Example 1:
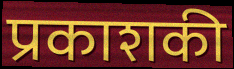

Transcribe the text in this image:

प्रकाशकी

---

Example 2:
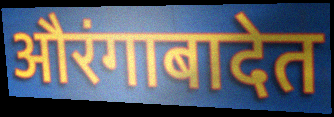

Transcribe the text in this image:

औरंगाबादेत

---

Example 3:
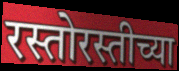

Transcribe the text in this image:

रस्तोरस्तीच्या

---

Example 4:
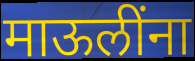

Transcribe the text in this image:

माऊलींना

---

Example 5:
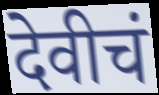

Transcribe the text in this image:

देवीचं